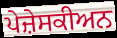
ਪੇਜ਼ੇਸਕੀਅਨ